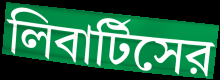
লিবার্টিসের